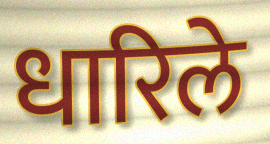
धारिले